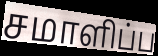
சமாளிப்ப